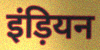
इंड़ियन